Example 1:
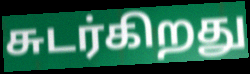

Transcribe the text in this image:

சுடர்கிறது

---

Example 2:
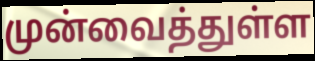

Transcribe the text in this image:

முன்வைத்துள்ள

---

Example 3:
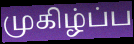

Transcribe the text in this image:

முகிழ்ப்ப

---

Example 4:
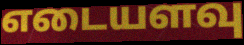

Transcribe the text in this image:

எடையளவு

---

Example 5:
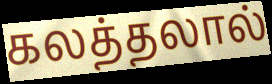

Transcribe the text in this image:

கலத்தலால்